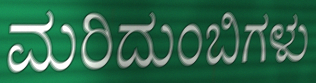
ಮರಿದುಂಬಿಗಳು